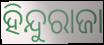
ହିନ୍ଦୁରାଜା